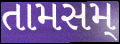
તામસમ્